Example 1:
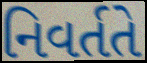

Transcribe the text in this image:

નિવર્તતે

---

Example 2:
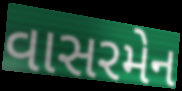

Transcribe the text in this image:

વાસરમેન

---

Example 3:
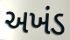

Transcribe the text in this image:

અખંડ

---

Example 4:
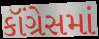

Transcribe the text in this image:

કૉંગ્રેસમાં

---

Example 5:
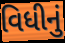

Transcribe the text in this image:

વિધીનું